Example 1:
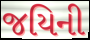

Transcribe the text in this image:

જયિની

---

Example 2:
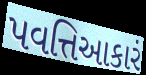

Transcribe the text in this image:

પવત્તિઆકારં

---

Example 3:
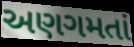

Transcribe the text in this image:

અણગમતાં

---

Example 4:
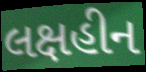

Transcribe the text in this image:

લક્ષહીન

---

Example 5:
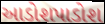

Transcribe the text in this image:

આડોશપાડોશ